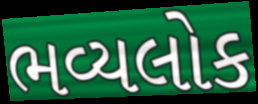
ભવ્યલોક